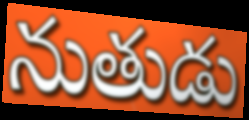
నుతుడు